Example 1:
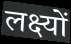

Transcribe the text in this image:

लक्ष्‍यों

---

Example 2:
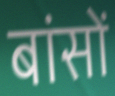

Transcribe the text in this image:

बांसों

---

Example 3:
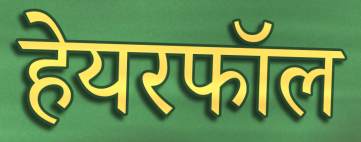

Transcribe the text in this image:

हेयरफॉल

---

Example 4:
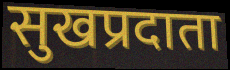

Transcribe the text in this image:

सुखप्रदाता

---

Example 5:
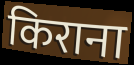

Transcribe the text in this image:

किराना